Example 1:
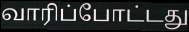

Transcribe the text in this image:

வாரிப்போட்டது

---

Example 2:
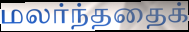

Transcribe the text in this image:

மலர்ந்ததைக்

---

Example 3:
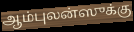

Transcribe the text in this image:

ஆம்புலன்ஸுக்கு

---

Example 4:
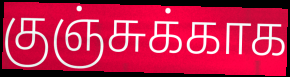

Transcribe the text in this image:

குஞ்சுக்காக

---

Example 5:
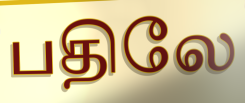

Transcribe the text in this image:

பதிலே